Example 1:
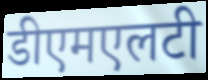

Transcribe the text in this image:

डीएमएलटी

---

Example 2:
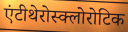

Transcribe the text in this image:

एंटीथेरोस्क्लोरोटिक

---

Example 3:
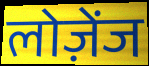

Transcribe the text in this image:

लोज़ेंज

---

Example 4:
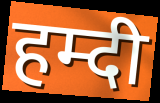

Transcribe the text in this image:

हम्दी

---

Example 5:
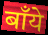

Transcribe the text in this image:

बाँये